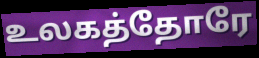
உலகத்தோரே